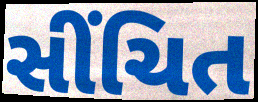
સીંચિત